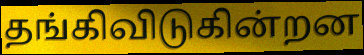
தங்கிவிடுகின்றன